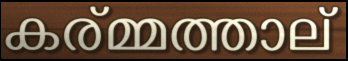
കര്മ്മത്താല്